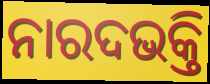
ନାରଦଭକ୍ତି